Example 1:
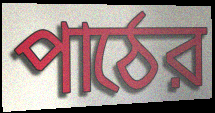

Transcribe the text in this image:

পাঠের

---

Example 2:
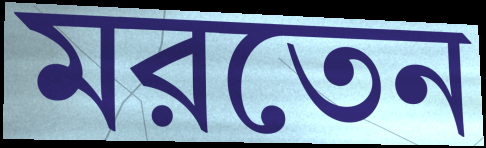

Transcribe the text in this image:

মরতেন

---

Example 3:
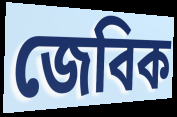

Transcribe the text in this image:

জেবিক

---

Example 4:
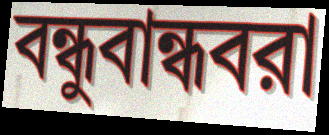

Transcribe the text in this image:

বন্ধুবান্ধবরা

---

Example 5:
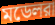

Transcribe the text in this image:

মডেলরা